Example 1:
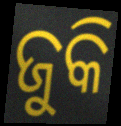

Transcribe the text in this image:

ଜୁକି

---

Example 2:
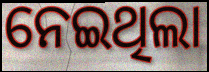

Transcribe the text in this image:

ନେଇଥିଲା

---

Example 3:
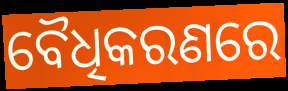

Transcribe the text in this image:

ବୈଧିକରଣରେ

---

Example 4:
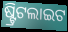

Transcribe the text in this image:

ଷ୍ଟ୍ରିଟଲାଇଟ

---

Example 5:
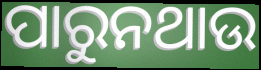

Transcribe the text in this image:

ପାରୁନଥାଉ